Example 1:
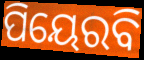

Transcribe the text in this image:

ପିୟେରବି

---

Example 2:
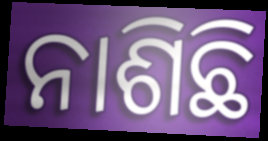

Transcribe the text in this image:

ନାଶିଛି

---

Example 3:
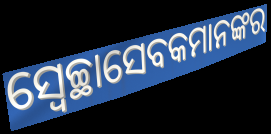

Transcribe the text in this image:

ସ୍ୱେଚ୍ଛାସେବକମାନଙ୍କର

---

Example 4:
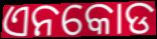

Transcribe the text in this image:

ଏନକୋଡ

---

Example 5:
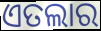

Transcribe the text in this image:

ଏତଲାର